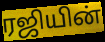
ரஜியின்